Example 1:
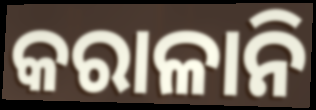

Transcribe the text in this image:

କରାଳାନି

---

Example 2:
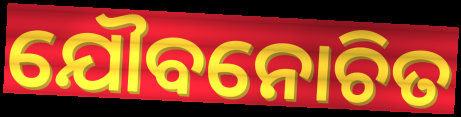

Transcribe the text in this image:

ଯୌବନୋଚିତ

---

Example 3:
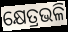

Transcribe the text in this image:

କ୍ଷେତ୍ରଭଳି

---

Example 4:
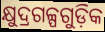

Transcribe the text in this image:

କ୍ଷୁଦ୍ରଗଳ୍ପଗୁଡ଼ିକ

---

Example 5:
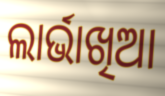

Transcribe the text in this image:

ଲାର୍ଭାଖିଆ